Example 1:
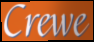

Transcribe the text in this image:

Crewe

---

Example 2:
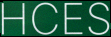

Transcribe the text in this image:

HCES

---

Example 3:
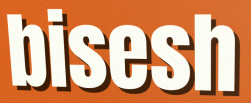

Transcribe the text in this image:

bisesh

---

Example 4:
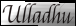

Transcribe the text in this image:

Ulladhu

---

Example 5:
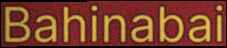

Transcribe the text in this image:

Bahinabai